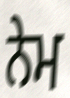
ਨੇਮ